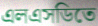
এলএসডিতে